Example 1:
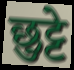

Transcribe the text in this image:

छुट्टे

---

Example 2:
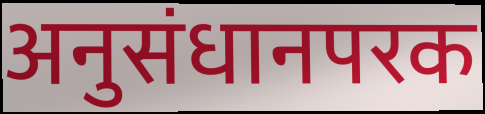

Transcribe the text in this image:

अनुसंधानपरक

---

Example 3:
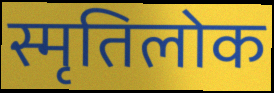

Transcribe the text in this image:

स्मृतिलोक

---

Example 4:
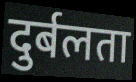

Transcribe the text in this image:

दुर्बलता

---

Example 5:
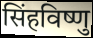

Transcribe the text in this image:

सिंहविष्णु